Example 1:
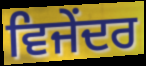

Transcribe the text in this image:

ਵਿਜੇਂਦਰ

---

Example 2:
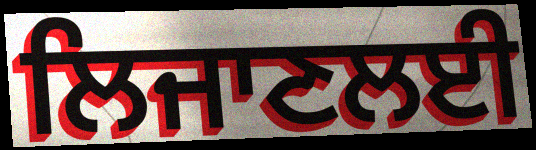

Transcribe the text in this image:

ਲਿਜਾਣਲਈ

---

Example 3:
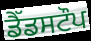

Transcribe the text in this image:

ਡੈੱਡਸਟੌਪ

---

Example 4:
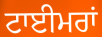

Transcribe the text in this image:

ਟਾਈਮਰਾਂ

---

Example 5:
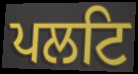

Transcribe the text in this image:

ਪਲਟਿ